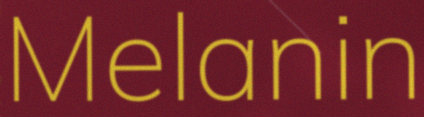
Melanin